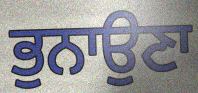
ਭੁਨਾਉਣਾ